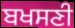
ਬਖਸਣੀ